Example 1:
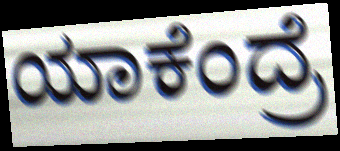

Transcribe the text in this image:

ಯಾಕೆಂದ್ರೆ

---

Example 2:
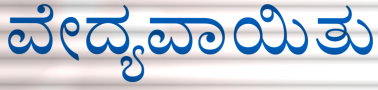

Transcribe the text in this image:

ವೇದ್ಯವಾಯಿತು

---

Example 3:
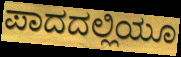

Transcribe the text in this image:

ಪಾದದಲ್ಲಿಯೂ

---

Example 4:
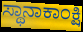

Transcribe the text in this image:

ಸ್ಥಾನಾಕಾಂಕ್ಷಿ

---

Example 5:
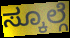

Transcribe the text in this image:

ಸ್ಕೂಲ್ಗೆ